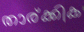
താര്ക്കിക